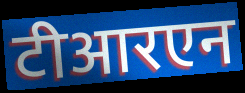
टीआरएन